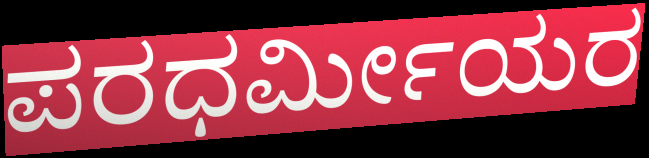
ಪರಧರ್ಮೀಯರ